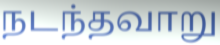
நடந்தவாறு